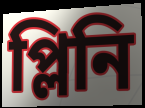
প্লিনি